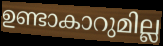
ഉണ്ടാകാറുമില്ല